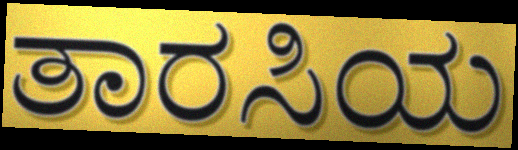
ತಾರಸಿಯ